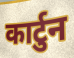
कार्टुन